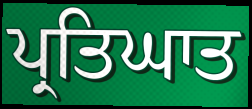
ਪ੍ਰਤਿਘਾਤ